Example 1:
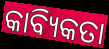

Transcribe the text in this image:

କାବ୍ୟିକତା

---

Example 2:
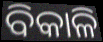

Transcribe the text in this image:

ବିକାଳି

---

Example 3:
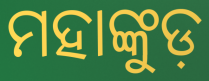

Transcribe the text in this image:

ମହାଙ୍କୁଡ଼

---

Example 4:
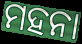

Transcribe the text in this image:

ମହନା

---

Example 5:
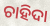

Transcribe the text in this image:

ଚାହିଦା